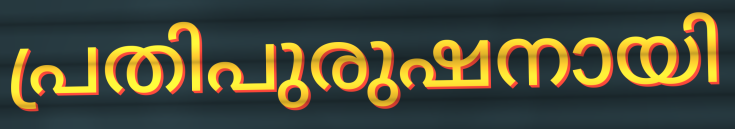
പ്രതിപുരുഷനായി